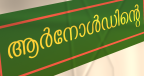
ആർനോൾഡിന്റെ